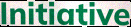
Initiative